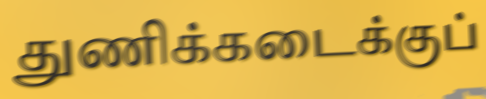
துணிக்கடைக்குப்